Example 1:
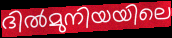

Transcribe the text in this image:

ദിൽമുനിയയിലെ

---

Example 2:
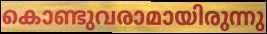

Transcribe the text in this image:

കൊണ്ടുവരാമായിരുന്നു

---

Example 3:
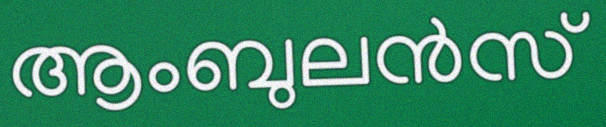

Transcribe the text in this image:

ആംബുലൻസ്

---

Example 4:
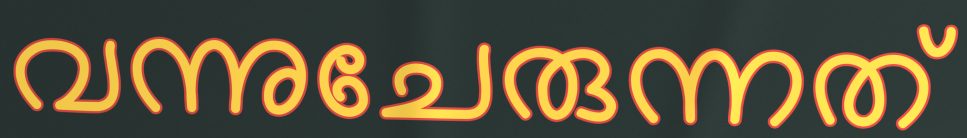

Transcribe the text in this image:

വന്നുചേരുന്നത്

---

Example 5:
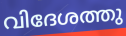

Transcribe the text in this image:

വിദേശത്തു